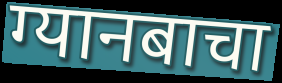
ग्यानबाचा